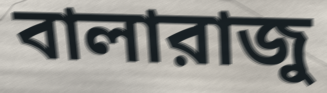
বালারাজু